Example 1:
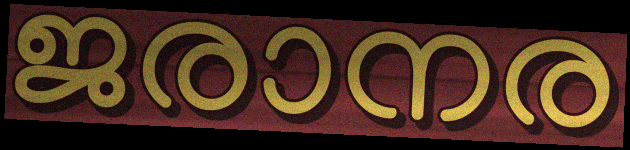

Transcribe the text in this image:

ജരാനര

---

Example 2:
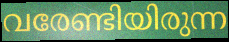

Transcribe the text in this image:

വരേണ്ടിയിരുന്ന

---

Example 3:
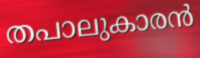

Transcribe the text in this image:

തപാലുകാരൻ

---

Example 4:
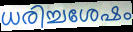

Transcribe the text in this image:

ധരിച്ചശേഷം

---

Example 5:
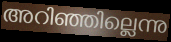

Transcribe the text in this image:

അറിഞ്ഞില്ലെന്നു